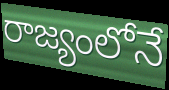
రాజ్యంలోనే